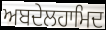
ਅਬਦੇਲਹਾਮਿਦ